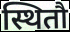
स्थितौ